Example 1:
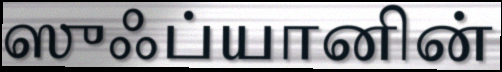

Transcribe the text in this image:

ஸுஃப்யானின்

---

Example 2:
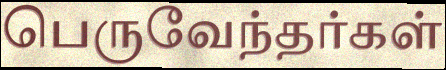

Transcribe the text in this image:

பெருவேந்தர்கள்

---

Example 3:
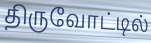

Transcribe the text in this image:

திருவோட்டில்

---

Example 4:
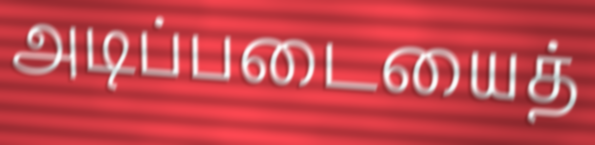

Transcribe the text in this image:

அடிப்படையைத்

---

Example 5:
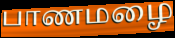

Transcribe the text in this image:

பாணமழை